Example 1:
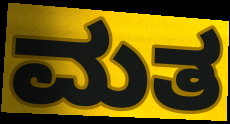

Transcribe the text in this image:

ಮತ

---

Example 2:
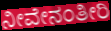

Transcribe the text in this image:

ನೀವೇನಂತೀರಿ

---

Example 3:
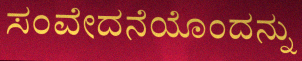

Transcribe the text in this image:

ಸಂವೇದನೆಯೊಂದನ್ನು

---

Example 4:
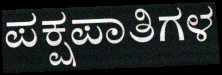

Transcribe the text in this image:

ಪಕ್ಷಪಾತಿಗಳ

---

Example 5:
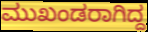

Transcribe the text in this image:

ಮುಖಂಡರಾಗಿದ್ದ